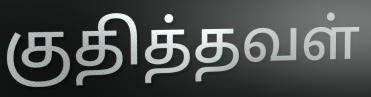
குதித்தவள்